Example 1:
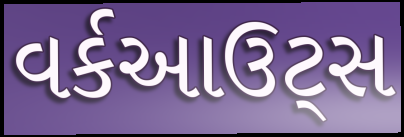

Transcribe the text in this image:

વર્કઆઉટ્સ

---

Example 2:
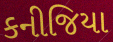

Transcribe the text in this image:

કનીજિયા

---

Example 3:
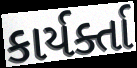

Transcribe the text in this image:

કાર્યર્ક્તા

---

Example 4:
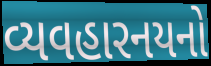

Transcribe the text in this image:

વ્યવહારનયનો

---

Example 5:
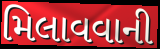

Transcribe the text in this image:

મિલાવવાની